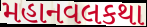
મહાનવલકથા